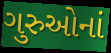
ગુરુઓનાં